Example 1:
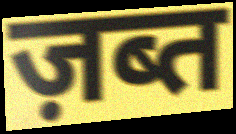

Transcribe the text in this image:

ज़ब्त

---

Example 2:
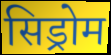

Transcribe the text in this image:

सिड्रोम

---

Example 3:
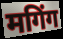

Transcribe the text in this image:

मगिंग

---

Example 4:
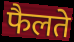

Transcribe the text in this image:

फैलते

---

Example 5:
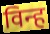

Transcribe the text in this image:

विन्ह